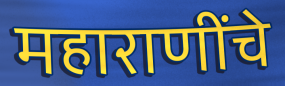
महाराणींचे